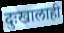
दुःखालाही